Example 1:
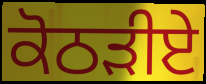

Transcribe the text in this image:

ਕੋਠੜੀਏ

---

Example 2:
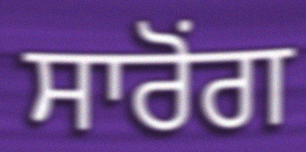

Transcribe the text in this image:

ਸਾਰੋਂਗ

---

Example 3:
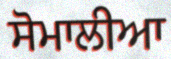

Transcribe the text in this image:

ਸੋਮਾਲੀਆ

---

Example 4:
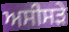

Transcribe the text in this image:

ਅਸੀਸੜੇ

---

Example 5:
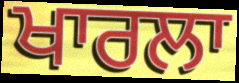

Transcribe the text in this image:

ਖਾਰਲਾ